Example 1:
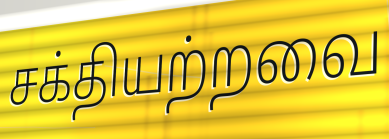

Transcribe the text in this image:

சக்தியற்றவை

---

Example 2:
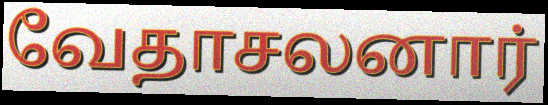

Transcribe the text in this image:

வேதாசலனார்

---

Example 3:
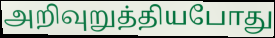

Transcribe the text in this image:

அறிவுறுத்தியபோது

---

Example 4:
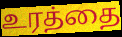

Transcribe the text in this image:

உரத்தை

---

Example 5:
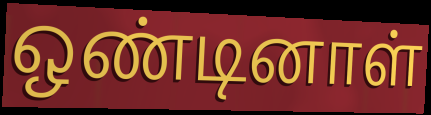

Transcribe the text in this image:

ஒண்டினாள்